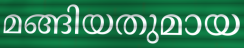
മങ്ങിയതുമായ